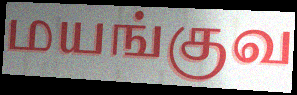
மயங்குவ